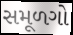
સમૂળગો